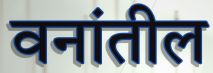
वनांतील